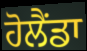
ਹੋਲੈਂਡਾ